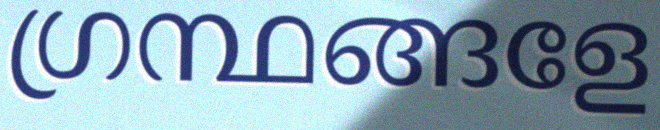
ഗ്രന്ഥങ്ങളേ